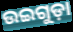
ଉଇଗୁଡ଼ା